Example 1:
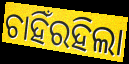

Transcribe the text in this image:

ଚାହିଁରହିଲା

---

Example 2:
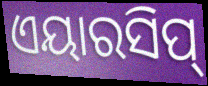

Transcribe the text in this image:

ଏୟାରସିପ୍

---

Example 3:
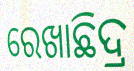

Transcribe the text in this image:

ରେଖାଛିଦ୍ର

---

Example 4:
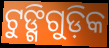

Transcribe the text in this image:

ଟୁଙ୍ଗିଗୁଡ଼ିକ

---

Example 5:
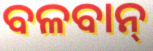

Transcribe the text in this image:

ବଳବାନ୍